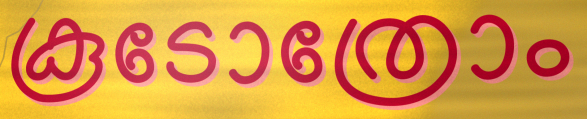
കൂടോത്രോം